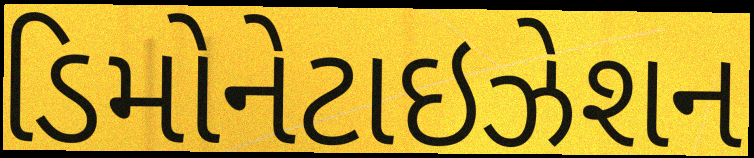
ડિમોનેટાઇઝેશન